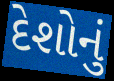
દેશોનું